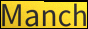
Manch